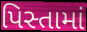
પિસ્તામાં